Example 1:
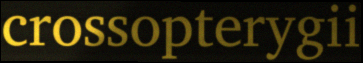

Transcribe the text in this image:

crossopterygii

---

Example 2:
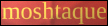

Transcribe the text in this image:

moshtaque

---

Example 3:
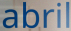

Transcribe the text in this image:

abril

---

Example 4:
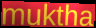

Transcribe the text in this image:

muktha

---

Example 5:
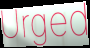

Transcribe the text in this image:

Urged